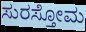
ಸುರಸ್ತೋಮ